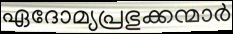
ഏദോമ്യപ്രഭുക്കന്മാർ